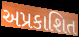
અપ્રકાશિત